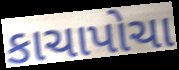
કાચાપોચા